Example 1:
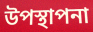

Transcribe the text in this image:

উপস্থাপনা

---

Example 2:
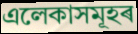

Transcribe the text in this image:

এলেকাসমূহৰ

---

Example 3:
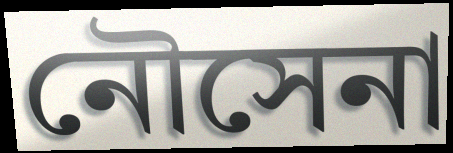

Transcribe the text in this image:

নৌসেনা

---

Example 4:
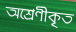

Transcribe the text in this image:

অশ্ৰেণীকৃত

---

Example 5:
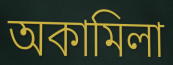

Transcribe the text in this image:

অকামিলা